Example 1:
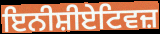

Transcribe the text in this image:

ਇਨੀਸ਼ੀਏਟਿਵਜ਼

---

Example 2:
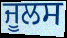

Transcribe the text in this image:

ਜੂਲਸ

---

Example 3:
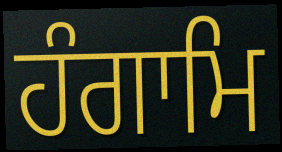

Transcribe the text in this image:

ਹੰਗਾਮਿ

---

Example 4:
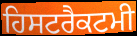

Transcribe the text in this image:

ਹਿਸਟਰੈਕਟਮੀ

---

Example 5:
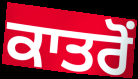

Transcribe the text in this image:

ਕਾਤਰੋੰ